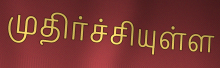
முதிர்ச்சியுள்ள